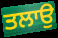
ਤਲਾਉ